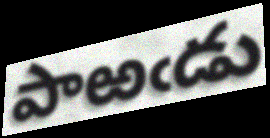
పాఱఁడు